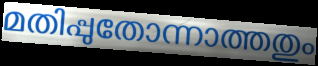
മതിപ്പുതോന്നാത്തതും